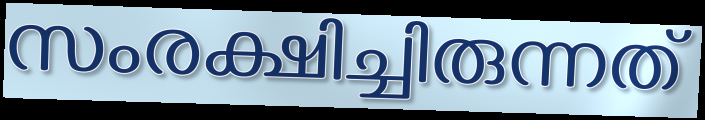
സംരക്ഷിച്ചിരുന്നത്